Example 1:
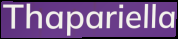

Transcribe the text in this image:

Thapariella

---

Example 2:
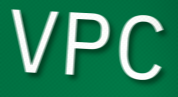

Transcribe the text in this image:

VPC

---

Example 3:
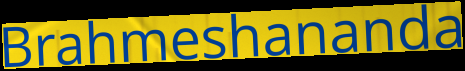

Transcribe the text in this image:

Brahmeshananda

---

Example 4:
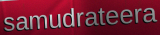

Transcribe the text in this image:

samudrateera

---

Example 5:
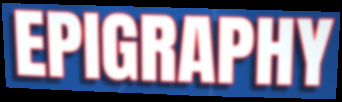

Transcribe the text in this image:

EPIGRAPHY